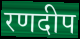
रणदीप